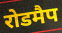
रोडमैप